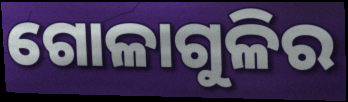
ଗୋଳାଗୁଳିର